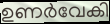
ഉണർവേകി